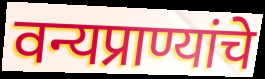
वन्यप्राण्यांचे